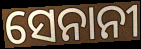
ସେନାନୀ